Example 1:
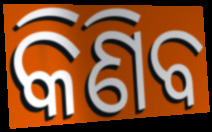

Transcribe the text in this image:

କିଣିବ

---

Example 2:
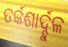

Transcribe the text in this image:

ତର୍କଶାର୍ଦ୍ଦୁଳ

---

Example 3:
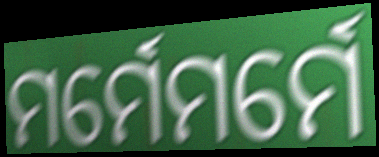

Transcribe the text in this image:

ମର୍ମେମର୍ମେ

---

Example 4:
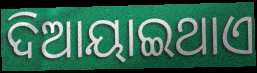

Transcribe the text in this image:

ଦିଆୟାଇଥାଏ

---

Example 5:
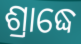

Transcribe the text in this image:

ଶ୍ରାଦ୍ଧେ